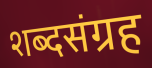
शब्दसंग्रह